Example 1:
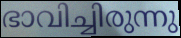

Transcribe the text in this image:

ഭാവിച്ചിരുന്നു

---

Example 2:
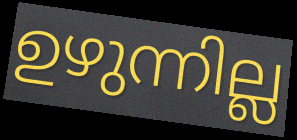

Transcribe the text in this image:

ഉഴുന്നില്ല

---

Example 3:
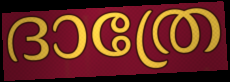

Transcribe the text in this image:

ദാത്രേ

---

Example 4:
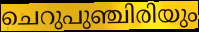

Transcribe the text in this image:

ചെറുപുഞ്ചിരിയും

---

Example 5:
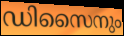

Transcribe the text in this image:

ഡിസൈനും